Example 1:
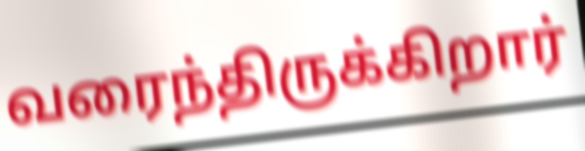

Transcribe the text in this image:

வரைந்திருக்கிறார்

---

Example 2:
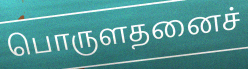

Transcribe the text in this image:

பொருளதனைச்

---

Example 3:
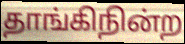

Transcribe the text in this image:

தாங்கிநின்ற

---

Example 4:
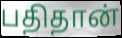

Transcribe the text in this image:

பதிதான்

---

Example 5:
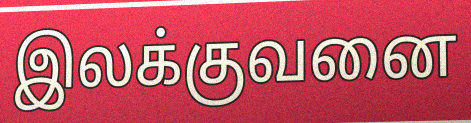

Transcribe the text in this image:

இலக்குவனை